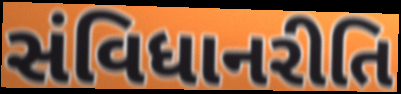
સંવિધાનરીતિ